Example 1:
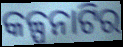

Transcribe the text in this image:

କଳ୍ପନାଟିର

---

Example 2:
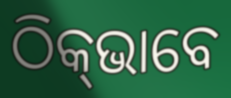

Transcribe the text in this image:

ଠିକ୍‍ଭାବେ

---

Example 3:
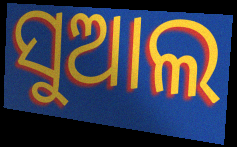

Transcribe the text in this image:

ସୁଆଲ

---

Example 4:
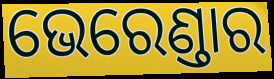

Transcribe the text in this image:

ଭେରେଣ୍ଡାର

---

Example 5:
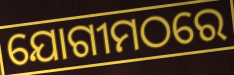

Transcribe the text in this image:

ଯୋଗୀମଠରେ